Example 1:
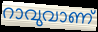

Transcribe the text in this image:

റാവുവാണ്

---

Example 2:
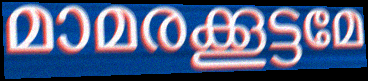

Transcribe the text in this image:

മാമരക്കൂട്ടമേ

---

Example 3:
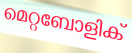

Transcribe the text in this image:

മെറ്റബോളിക്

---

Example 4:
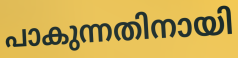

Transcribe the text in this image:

പാകുന്നതിനായി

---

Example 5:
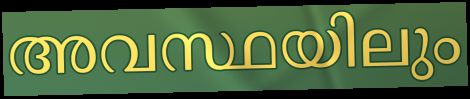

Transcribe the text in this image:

അവസ്ഥയിലും